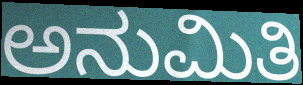
ಅನುಮಿತಿ